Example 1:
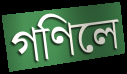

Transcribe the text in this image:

গণিলে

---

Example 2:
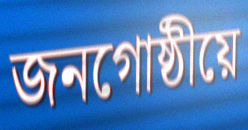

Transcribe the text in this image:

জনগোষ্ঠীয়ে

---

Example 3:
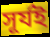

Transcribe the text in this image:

সূৰ্যই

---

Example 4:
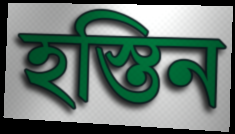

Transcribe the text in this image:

হস্তিন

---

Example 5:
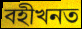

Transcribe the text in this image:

বহীখনত